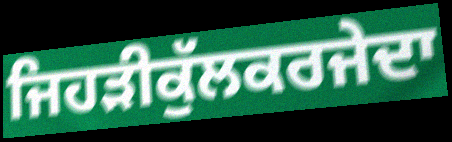
ਜਿਹੜੀਕੁੱਲਕਰਜੇਦਾ